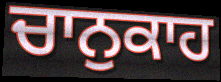
ਚਾਨੁਕਾਹ